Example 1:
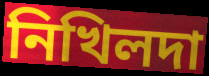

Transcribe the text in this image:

নিখিলদা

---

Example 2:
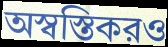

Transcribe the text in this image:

অস্বস্তিকরও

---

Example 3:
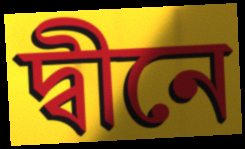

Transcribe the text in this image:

দ্বীনে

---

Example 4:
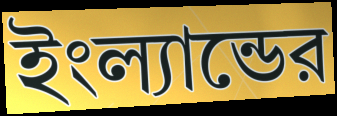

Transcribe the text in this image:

ইংল্য়ান্ডের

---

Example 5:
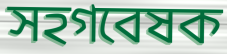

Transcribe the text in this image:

সহগবেষক